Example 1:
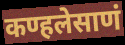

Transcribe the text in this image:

कण्हलेसाणं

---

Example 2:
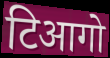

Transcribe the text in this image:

टिआगो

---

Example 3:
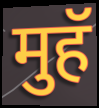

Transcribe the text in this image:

मुहॅ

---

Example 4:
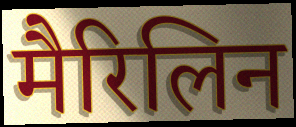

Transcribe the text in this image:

मैरिलिन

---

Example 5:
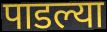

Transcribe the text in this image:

पाडल्या